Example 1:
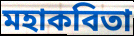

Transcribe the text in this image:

মহাকবিতা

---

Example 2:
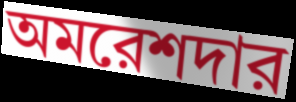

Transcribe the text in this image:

অমরেশদার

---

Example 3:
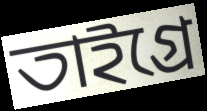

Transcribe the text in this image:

তাইগ্রে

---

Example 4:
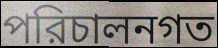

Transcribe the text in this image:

পরিচালনগত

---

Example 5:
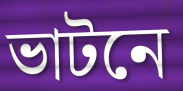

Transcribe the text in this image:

ভাটনে